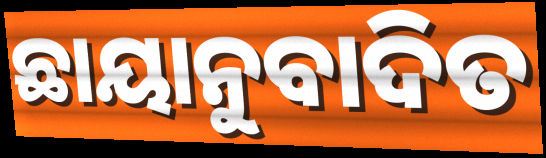
ଛାୟାନୁବାଦିତ